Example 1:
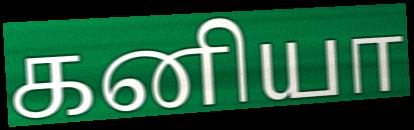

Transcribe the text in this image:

கனியா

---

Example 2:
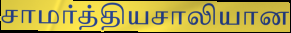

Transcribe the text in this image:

சாமர்த்தியசாலியான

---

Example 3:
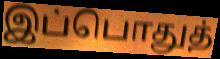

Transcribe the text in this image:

இப்பொதுத்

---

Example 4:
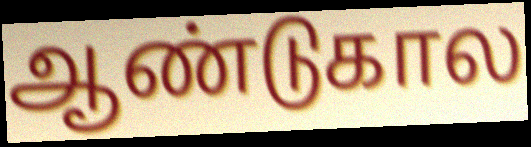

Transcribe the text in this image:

ஆண்டுகால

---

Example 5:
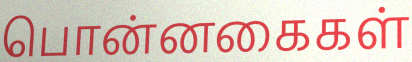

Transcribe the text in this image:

பொன்னகைகள்